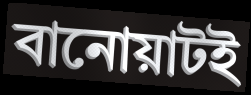
বানোয়াটই